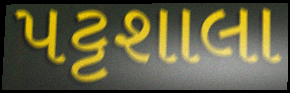
પટ્ટશાલા